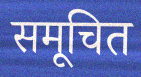
समूचित